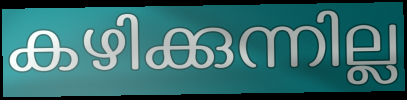
കഴിക്കുന്നില്ല